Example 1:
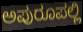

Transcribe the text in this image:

ಅಪುರೂಪಲ್ಲಿ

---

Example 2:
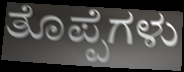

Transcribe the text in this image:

ತೊಪ್ಪೆಗಳು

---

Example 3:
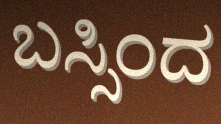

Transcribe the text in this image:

ಬಸ್ಸಿಂದ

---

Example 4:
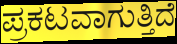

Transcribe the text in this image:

ಪ್ರಕಟವಾಗುತ್ತಿದೆ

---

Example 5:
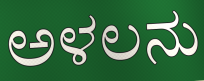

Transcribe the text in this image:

ಅಳಲನು